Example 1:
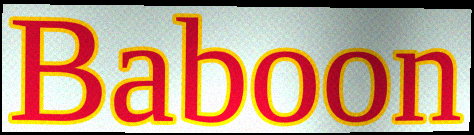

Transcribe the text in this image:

Baboon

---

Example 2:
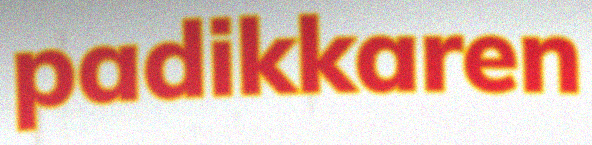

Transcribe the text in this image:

padikkaren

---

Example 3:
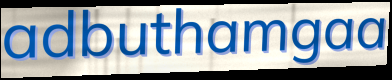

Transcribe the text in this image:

adbuthamgaa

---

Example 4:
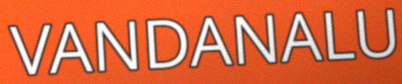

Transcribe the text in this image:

VANDANALU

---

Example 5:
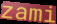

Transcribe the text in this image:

zami